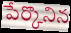
పేర్కొనిన